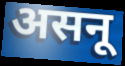
असनू